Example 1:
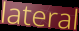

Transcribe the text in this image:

lateral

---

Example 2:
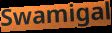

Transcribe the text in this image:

Swamigal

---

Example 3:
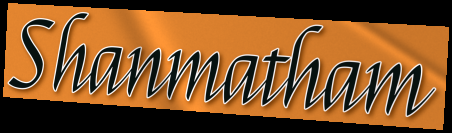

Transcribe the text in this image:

Shanmatham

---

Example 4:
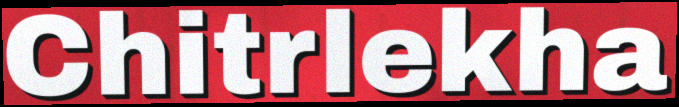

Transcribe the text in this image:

Chitrlekha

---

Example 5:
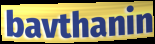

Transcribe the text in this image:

bavthanin